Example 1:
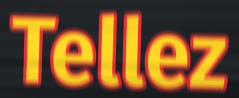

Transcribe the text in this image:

Tellez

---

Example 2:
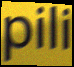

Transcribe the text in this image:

pili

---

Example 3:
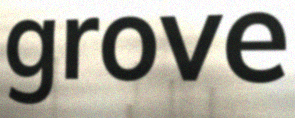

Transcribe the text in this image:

grove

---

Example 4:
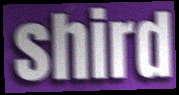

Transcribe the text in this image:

shird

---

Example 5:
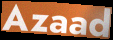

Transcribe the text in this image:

Azaad